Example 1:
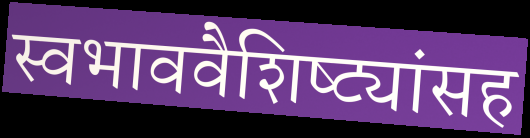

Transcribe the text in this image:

स्वभाववैशिष्ट्यांसह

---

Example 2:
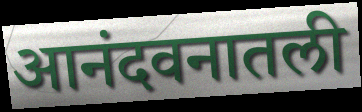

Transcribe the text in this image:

आनंदवनातली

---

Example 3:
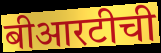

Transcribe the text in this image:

बीआरटीची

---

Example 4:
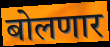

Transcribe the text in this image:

बोलणार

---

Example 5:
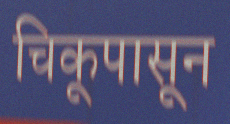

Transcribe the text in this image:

चिकूपासून